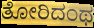
ತೋರಿದಂಥ